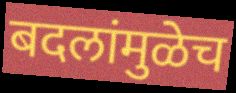
बदलांमुळेच